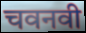
चवनवी